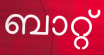
ബാറ്റ്